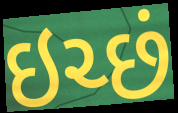
ઇચ્છં